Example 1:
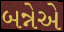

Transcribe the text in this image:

બન્નેએ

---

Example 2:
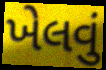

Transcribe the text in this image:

ખેલવું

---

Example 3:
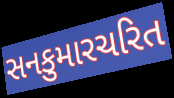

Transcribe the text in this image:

સનકુમારચરિત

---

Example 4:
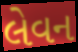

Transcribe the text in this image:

લેવન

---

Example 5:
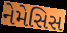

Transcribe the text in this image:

નેમેસિસ